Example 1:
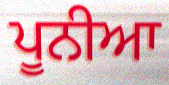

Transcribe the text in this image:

ਪੂਨੀਆ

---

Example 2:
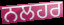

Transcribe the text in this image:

ਨਲਹਰ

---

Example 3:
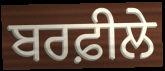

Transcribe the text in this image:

ਬਰਫ਼ੀਲੇ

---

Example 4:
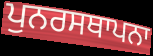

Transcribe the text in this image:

ਪੁਨਰਸਥਾਪਨਾ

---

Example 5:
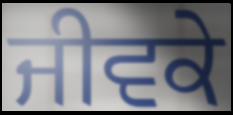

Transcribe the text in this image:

ਜੀਵਕੇ